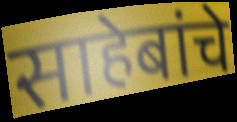
साहेबांचे